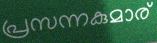
പ്രസന്നകുമാര്